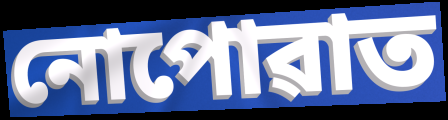
নোপোৱাত